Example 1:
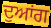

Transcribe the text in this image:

ਦੁਆਂਗ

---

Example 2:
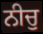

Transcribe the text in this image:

ਨੀਚੁ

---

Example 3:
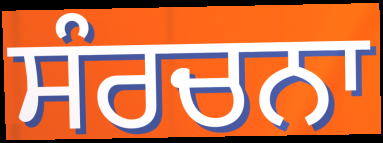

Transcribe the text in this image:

ਸੰਰਚਨਾ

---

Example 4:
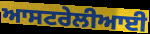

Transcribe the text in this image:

ਆਸਟਰੇਲੀਆਈ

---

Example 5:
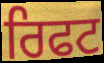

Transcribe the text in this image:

ਰਿਫਟ